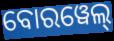
ବୋରୱେଲ୍